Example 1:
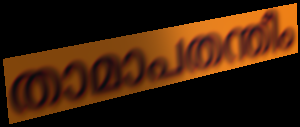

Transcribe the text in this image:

താമാപതന്തീം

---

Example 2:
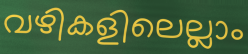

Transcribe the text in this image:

വഴികളിലെല്ലാം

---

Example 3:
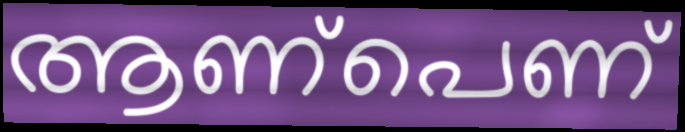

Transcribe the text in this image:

ആണ്പെണ്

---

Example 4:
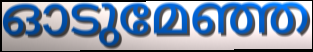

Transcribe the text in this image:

ഓടുമേഞ്ഞ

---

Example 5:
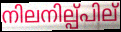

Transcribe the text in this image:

നിലനില്പ്പില്